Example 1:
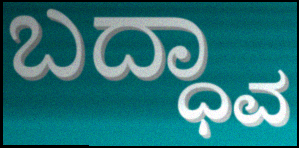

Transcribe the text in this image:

ಬದ್ಧ್ವಾ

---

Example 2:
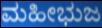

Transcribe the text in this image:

ಮಹೀಭುಜ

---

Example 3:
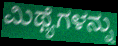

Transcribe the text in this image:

ಮಿಥ್ಯೆಗಳನ್ನು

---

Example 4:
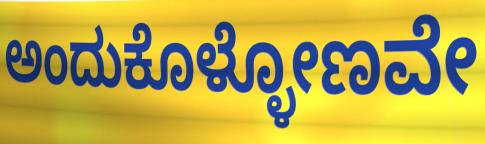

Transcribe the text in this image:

ಅಂದುಕೊಳ್ಳೋಣವೇ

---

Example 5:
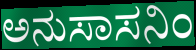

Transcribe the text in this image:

ಅನುಸಾಸನಿಂ